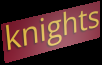
knights